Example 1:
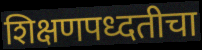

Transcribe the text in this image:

शिक्षणपध्दतीचा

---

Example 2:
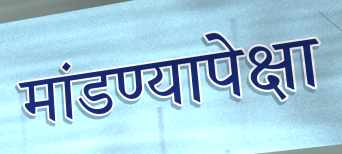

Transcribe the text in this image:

मांडण्यापेक्षा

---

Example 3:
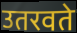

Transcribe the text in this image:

उतरवते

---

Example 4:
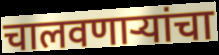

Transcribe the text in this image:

चालवणाऱ्यांचा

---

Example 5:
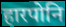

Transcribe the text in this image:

हारपोनि